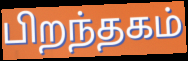
பிறந்தகம்